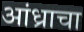
आंध्राचा